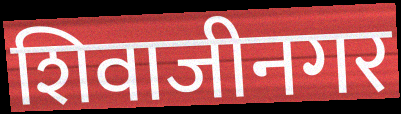
शिवाजीनगर